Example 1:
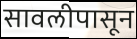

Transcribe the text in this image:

सावलीपासून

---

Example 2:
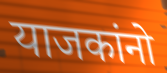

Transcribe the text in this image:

याजकांनो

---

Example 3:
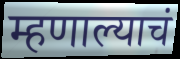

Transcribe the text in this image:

म्हणाल्याचं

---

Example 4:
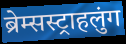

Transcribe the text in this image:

ब्रेम्सस्ट्राहलुंग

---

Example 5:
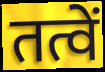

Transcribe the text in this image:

तत्वें